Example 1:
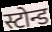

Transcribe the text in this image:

स्टोन्ड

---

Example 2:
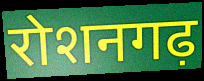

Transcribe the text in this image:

रोशनगढ़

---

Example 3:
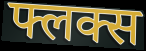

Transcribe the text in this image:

फ्लक्स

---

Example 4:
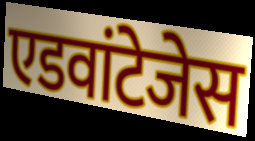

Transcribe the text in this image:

एडवांटेजेस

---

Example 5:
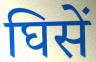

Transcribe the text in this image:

घिसें